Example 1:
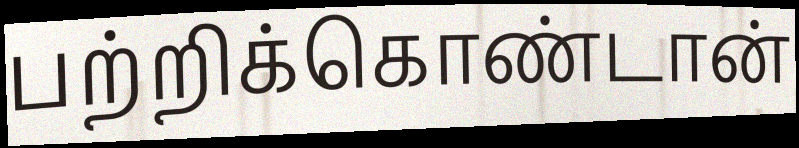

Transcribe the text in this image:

பற்றிக்கொண்டான்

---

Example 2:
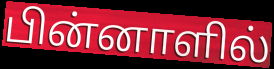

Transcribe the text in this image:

பின்னாளில்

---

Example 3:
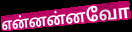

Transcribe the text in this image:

என்னன்னவோ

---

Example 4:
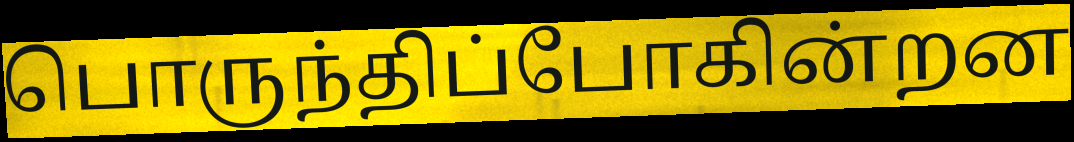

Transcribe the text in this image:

பொருந்திப்போகின்றன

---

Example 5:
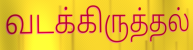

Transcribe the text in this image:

வடக்கிருத்தல்